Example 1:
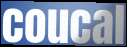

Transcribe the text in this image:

coucal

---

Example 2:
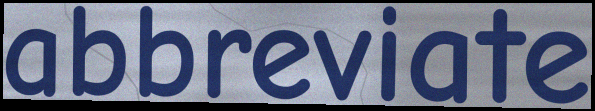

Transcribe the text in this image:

abbreviate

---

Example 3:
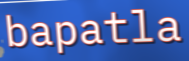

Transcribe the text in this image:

bapatla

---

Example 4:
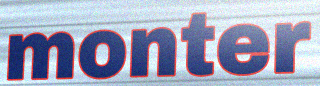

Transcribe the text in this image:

monter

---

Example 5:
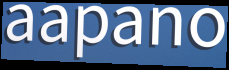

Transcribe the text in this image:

aapano